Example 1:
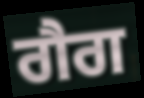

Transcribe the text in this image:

ਗੈਗ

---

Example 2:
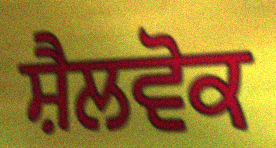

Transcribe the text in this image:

ਸ਼ੈਲਵੋਕ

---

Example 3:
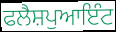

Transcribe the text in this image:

ਫਲੈਸ਼ਪੁਆਇੰਟ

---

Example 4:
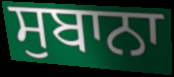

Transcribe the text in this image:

ਸੁਬਾਨਾ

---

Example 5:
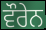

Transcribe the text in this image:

ਵੌਰੇਨ